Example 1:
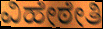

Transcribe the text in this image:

ವಿಹೇಠೇತಿ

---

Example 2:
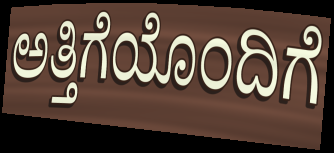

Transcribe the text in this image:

ಅತ್ತಿಗೆಯೊಂದಿಗೆ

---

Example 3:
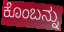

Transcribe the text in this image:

ಕೊಂಬನ್ನು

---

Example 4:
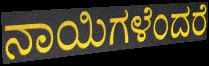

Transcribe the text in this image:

ನಾಯಿಗಳೆಂದರೆ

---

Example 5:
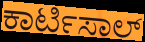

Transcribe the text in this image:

ಕಾರ್ಟಿಸಾಲ್